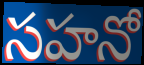
సహనో